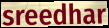
sreedhar